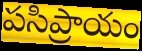
పసిప్రాయం